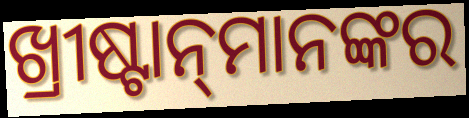
ଖ୍ରୀଷ୍ଟାନ୍‌ମାନଙ୍କର